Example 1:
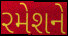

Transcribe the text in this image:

રમેશને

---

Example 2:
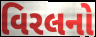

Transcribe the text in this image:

વિરલનો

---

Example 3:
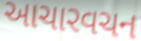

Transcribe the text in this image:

આચારવચન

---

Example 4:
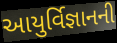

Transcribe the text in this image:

આયુર્વિજ્ઞાનની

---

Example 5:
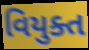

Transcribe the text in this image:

વિયુક્ત